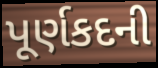
પૂર્ણકદની